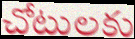
చోటులకు